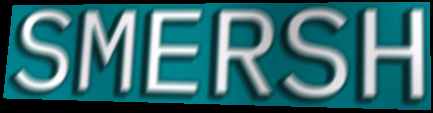
SMERSH